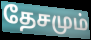
தேசமும்